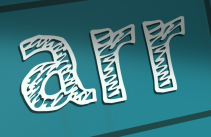
arr